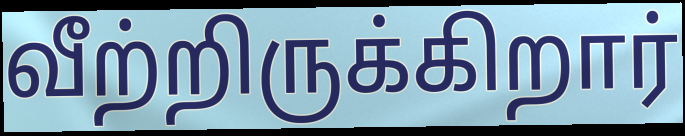
வீற்றிருக்கிறார்